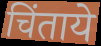
चिंताये